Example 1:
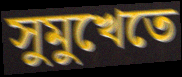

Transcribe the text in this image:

সুমুখেতে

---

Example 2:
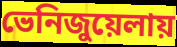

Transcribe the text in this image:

ভেনিজুয়েলায়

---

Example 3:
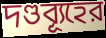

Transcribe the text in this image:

দণ্ডব্যূহের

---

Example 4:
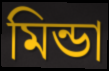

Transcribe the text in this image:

মিন্ডা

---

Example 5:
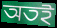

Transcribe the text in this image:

অতই